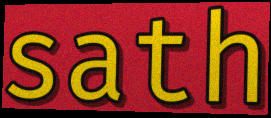
sath